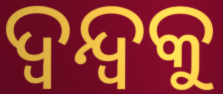
ଦ୍ୱନ୍ଦ୍ୱକୁ